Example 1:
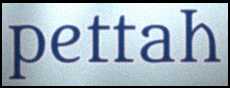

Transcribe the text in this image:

pettah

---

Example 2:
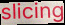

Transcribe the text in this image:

slicing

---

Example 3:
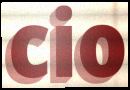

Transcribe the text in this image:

cio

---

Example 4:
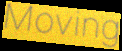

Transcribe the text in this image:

Moving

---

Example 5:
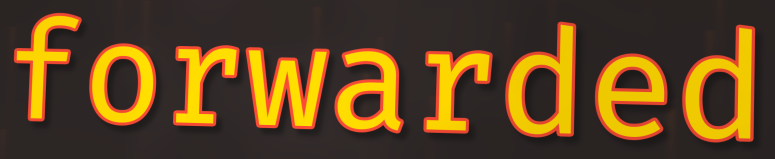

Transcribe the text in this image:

forwarded